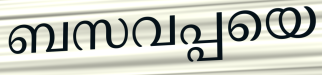
ബസവപ്പയെ